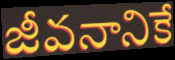
జీవనానికే